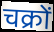
चक्रों